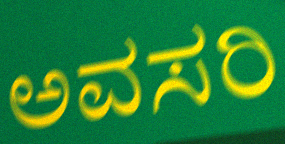
ಅವಸರಿ